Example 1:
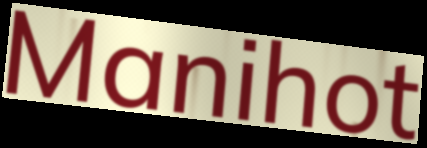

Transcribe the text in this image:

Manihot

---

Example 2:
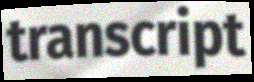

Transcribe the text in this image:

transcript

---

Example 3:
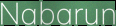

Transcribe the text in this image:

Nabarun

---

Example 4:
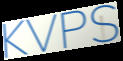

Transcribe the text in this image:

KVPS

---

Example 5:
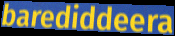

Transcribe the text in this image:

barediddeera